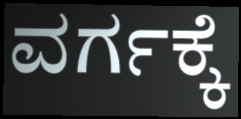
ವರ್ಗಕ್ಕೆ